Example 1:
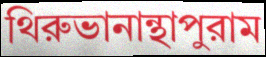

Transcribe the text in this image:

থিরুভানান্থাপুরাম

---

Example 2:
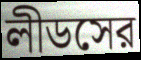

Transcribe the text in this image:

লীডসের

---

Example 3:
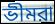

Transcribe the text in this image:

ভীমরা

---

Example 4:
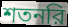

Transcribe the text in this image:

শতনরি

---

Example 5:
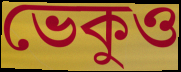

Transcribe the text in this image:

ভেকুও